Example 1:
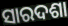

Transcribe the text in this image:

ସାରଦଶା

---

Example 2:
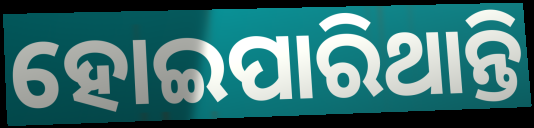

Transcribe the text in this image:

ହୋଇପାରିଥାନ୍ତି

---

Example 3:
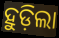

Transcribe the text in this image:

ହୁଡ଼ିଲା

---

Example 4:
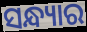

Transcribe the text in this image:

ସନ୍ଧ୍ୟାର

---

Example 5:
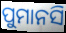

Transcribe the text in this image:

ପୁମାନସି